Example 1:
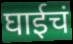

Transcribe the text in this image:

घाईचं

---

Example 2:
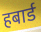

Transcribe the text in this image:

हबार्ड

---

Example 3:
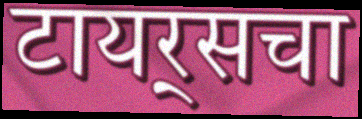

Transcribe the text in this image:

टायर्सचा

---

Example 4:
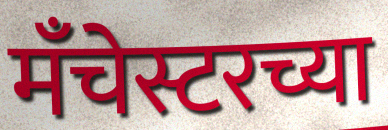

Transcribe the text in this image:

मँचेस्टरच्या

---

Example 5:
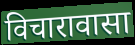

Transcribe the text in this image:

विचारावासा